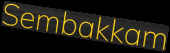
Sembakkam